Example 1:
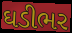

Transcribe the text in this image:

ઘડીભર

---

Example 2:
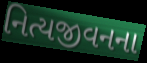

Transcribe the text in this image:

નિત્યજીવનના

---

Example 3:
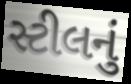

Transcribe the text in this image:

સ્ટીલનું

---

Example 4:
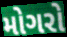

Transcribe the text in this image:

મોગરો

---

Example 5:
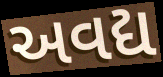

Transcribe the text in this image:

અવદ્ય